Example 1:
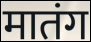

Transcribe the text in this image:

मातंग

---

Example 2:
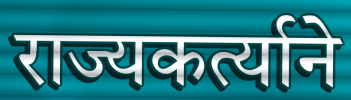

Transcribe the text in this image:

राज्यकर्त्याने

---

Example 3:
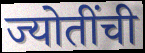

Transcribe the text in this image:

ज्योतींची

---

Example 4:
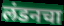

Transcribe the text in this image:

लंडनचा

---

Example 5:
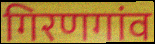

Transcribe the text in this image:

गिरणगांव